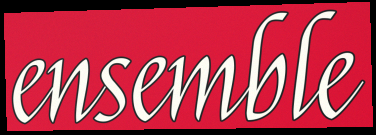
ensemble